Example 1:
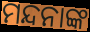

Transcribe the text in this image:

ମନ୍ଦନାଙ୍କ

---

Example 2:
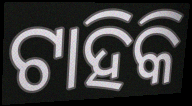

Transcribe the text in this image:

ଟାହିକି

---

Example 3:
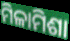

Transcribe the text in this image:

ମିଳାମିଶା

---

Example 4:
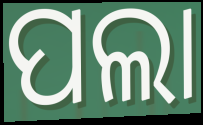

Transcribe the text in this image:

ପଲା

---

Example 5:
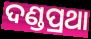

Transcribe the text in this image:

ଦଣ୍ଡପ୍ରଥା